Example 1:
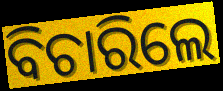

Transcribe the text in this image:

ବିଚାରିଲେ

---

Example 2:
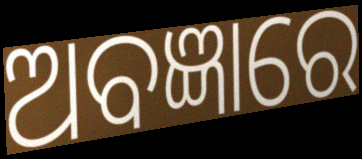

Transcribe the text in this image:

ଅବଜ୍ଞାରେ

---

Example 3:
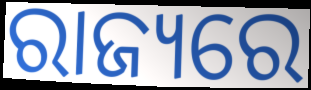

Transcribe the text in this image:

ରାଜ୍ଯରେ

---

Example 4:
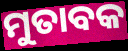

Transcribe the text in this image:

ମୁତାବକ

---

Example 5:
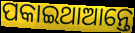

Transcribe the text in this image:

ପକାଇଥାଆନ୍ତେ